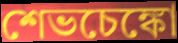
শেভচেঙ্কো